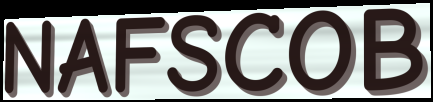
NAFSCOB